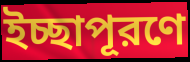
ইচ্ছাপূরণে